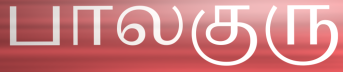
பாலகுரு